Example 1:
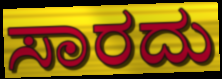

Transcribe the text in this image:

ಸಾರದು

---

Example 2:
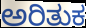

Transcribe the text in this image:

ಅರಿತುಕ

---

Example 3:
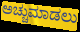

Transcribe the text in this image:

ಅಚ್ಚುಮಾಡಲು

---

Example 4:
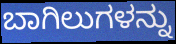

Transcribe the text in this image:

ಬಾಗಿಲುಗಳನ್ನು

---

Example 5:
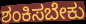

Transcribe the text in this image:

ಶಂಕಿಸಬೇಕು